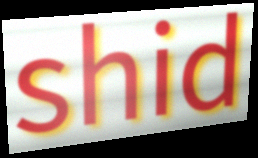
shid